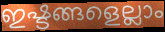
ഇഷ്ടങ്ങളെല്ലാം